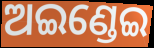
ଅଇଣ୍ଡେଇ